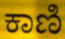
ಕಾಣಿ